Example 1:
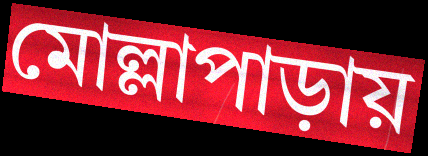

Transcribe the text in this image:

মোল্লাপাড়ায়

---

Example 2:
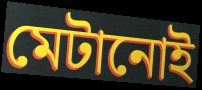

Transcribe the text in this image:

মেটানোই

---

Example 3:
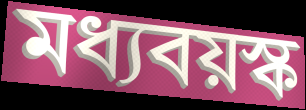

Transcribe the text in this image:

মধ্যবয়স্ক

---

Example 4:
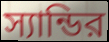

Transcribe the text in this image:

স্যান্ডির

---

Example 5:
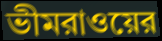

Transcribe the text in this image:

ভীমরাওয়ের